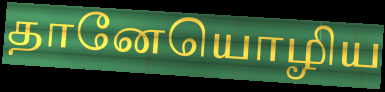
தானேயொழிய